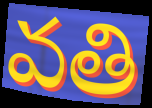
వతి